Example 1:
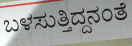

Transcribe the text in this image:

ಬಳಸುತ್ತಿದ್ದನಂತೆ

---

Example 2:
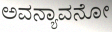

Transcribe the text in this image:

ಅವನ್ಯಾವನೋ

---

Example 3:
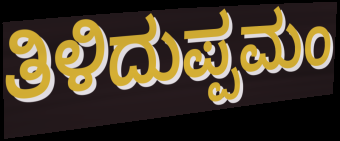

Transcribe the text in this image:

ತಿಳಿದುಪ್ಪಮಂ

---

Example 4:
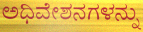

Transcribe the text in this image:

ಅಧಿವೇಶನಗಳನ್ನು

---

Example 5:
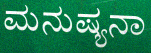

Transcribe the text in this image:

ಮನುಷ್ಯನಾ